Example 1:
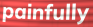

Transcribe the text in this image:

painfully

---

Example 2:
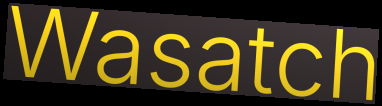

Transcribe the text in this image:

Wasatch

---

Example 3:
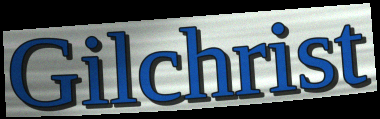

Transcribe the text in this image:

Gilchrist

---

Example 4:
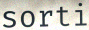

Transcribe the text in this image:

sorti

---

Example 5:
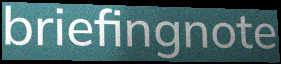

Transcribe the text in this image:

briefingnote